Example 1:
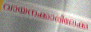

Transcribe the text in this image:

വായനക്കാരിലേക്കു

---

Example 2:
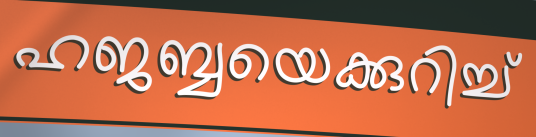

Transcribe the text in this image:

ഹജബ്ബയെക്കുറിച്ച്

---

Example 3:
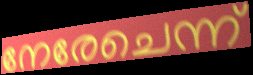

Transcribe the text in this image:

നേരേചെന്ന്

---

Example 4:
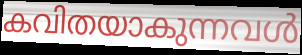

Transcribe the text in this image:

കവിതയാകുന്നവൾ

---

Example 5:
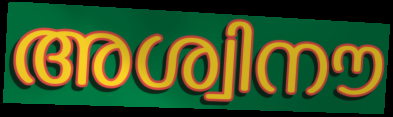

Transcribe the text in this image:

അശ്വിനൗ